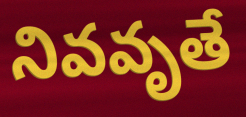
నివవృతే